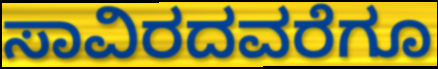
ಸಾವಿರದವರೆಗೂ